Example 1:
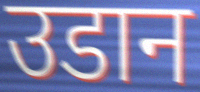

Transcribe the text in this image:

उडान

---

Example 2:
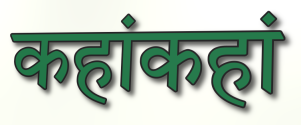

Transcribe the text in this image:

कहांकहां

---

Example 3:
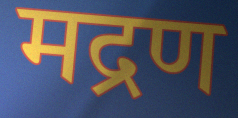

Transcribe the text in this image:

मद्रण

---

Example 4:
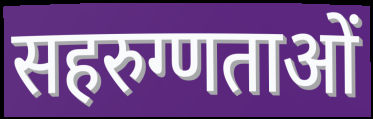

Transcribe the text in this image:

सहरुग्णताओं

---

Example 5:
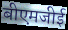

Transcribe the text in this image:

बीएमजीई